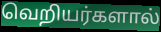
வெறியர்களால்